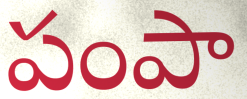
పంపా